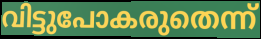
വിട്ടുപോകരുതെന്ന്